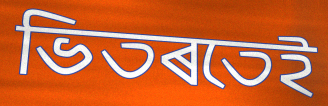
ভিতৰতেই